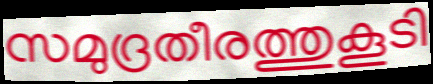
സമുദ്രതീരത്തുകൂടി